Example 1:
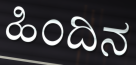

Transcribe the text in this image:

ಹಿಂದಿನ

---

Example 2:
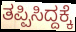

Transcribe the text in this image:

ತಪ್ಪಿಸಿದ್ದಕ್ಕೆ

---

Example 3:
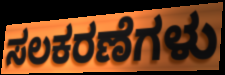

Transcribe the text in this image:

ಸಲಕರಣೆಗಳು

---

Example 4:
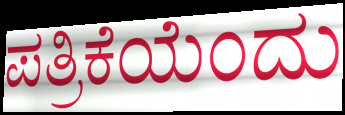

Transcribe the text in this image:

ಪತ್ರಿಕೆಯೆಂದು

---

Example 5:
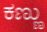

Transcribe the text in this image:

ಕಣ್ಣು